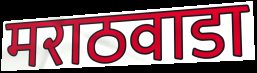
मराठवाडा